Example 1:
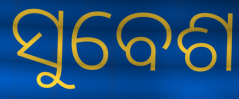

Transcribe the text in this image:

ସୁବେଶ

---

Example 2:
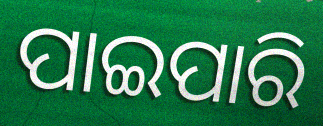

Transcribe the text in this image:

ପାଇପାରି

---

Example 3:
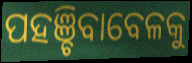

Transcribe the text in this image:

ପହଞ୍ଚିବାବେଳକୁ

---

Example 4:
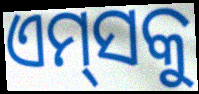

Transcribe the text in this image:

ଏମ୍‌ସକୁ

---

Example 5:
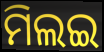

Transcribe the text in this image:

ମିଲଇ